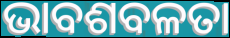
ଭାବଶବଳତା